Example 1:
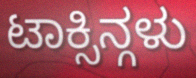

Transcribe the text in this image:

ಟಾಕ್ಸಿನ್ಗಳು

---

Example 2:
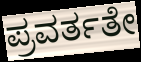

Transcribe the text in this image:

ಪ್ರವರ್ತತೇ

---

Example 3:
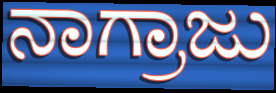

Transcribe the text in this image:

ನಾಗ್ರಾಜು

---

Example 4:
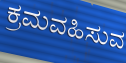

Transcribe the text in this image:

ಕ್ರಮವಹಿಸುವ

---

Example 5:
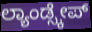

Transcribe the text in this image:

ಲ್ಯಾಂಡ್ಸ್ಕೇಪ್